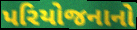
પરિયોજનાનો